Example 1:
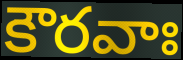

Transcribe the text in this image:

కౌరవాః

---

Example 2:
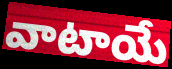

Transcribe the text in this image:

వాటాయే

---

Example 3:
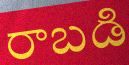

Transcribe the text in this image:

రాబడి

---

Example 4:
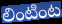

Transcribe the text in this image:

లింటింట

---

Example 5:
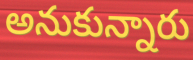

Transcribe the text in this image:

అనుకున్నారు